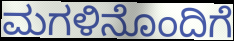
ಮಗಳಿನೊಂದಿಗೆ